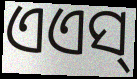
ଏଏସ୍